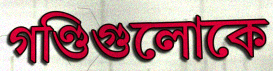
গণ্ডিগুলোকে